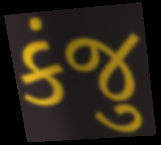
કંજુ